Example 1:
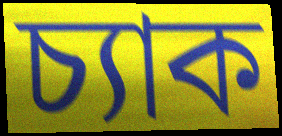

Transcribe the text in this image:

চ্যাক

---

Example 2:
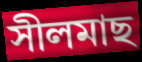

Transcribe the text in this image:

সীলমাছ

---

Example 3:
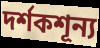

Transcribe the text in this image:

দর্শকশূন্য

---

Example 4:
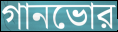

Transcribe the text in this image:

গানভোর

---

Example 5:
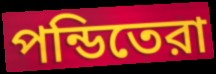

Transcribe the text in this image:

পন্ডিতেরা